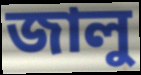
জালু